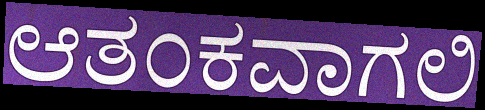
ಆತಂಕವಾಗಲಿ